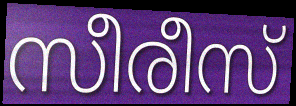
സീരീസ്